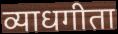
व्याधगीता